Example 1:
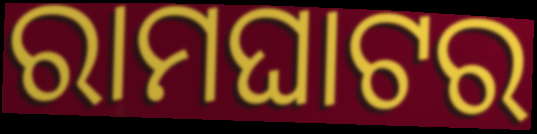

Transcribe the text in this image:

ରାମଘାଟର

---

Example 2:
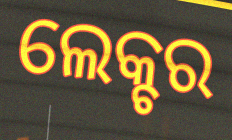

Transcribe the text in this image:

ଲେକ୍ଚର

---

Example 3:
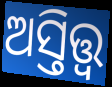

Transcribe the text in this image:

ଅସ୍ତିତ୍ତ୍ବ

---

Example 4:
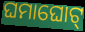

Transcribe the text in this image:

ଘମାଘୋଟ୍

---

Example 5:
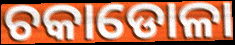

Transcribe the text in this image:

ଚକାଡୋଳା